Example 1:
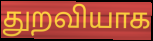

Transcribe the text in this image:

துறவியாக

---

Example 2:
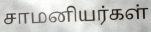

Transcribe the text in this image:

சாமனியர்கள்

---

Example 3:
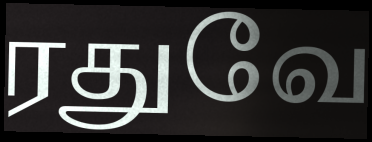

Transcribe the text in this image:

ரதுவே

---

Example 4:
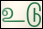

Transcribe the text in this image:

உடு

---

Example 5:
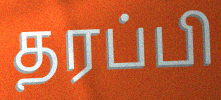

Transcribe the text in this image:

தரப்பி